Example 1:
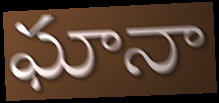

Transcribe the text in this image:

ఘానా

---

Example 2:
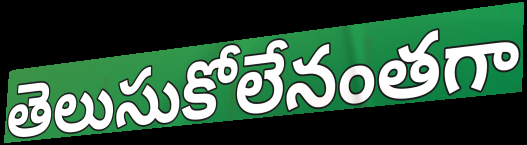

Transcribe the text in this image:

తెలుసుకోలేనంతగా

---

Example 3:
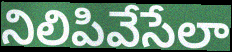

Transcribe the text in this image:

నిలిపివేసేలా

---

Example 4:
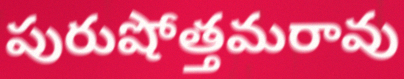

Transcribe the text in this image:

పురుషోత్తమరావు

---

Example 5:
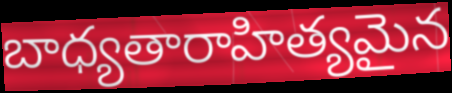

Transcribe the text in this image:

బాధ్యతారాహిత్యమైన